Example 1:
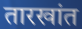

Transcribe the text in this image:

तारखांत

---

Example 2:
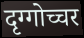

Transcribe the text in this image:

दृग्गोच्चर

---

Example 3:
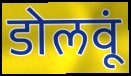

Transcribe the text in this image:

डोलवूं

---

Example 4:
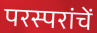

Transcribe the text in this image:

परस्परांचें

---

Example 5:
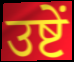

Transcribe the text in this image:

उष्टें